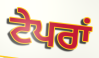
ਟੇਪਰਾਂ